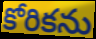
కోరికను